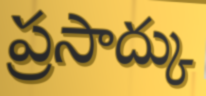
ప్రసాద్కు